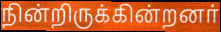
நின்றிருக்கின்றனர்